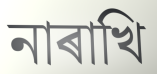
নাৰাখি